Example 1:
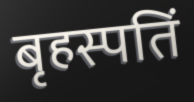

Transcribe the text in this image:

बृहस्पतिं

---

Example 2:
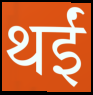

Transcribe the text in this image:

थईं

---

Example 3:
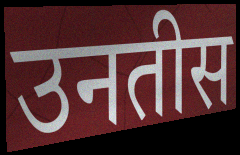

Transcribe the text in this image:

उनतीस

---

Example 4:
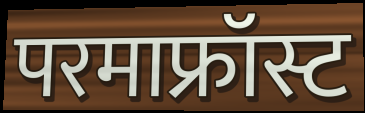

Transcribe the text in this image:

परमाफ्रॉस्ट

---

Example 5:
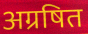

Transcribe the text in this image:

अग्रषित